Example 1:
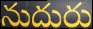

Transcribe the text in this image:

నుదురు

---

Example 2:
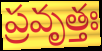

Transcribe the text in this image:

ప్రవృత్తః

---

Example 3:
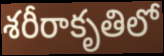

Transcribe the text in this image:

శరీరాకృతిలో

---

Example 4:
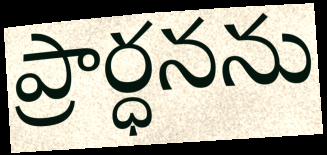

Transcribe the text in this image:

ప్రార్ధనను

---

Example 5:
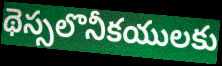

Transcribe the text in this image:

థెస్సలొనీకయులకు